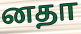
னதா